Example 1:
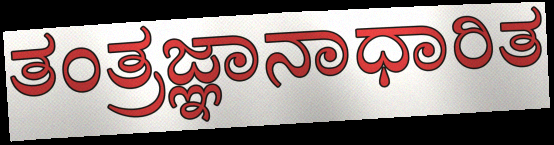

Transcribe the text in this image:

ತಂತ್ರಜ್ಞಾನಾಧಾರಿತ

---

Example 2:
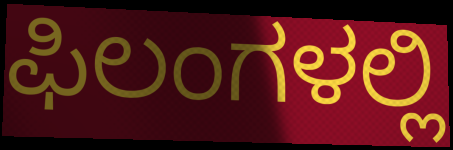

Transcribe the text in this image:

ಫಿಲಂಗಳಲ್ಲಿ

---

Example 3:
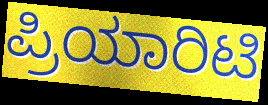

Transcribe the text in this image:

ಪ್ರಿಯಾರಿಟಿ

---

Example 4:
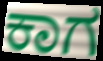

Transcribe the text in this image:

ಕಾಗ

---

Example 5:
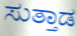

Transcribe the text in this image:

ಸುತ್ತಾಡ